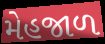
મેહજાળ